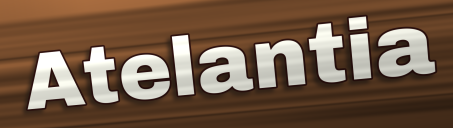
Atelantia